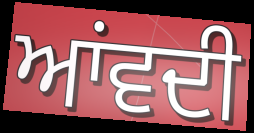
ਆਂਵਦੀ